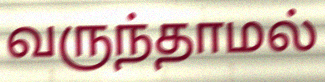
வருந்தாமல்